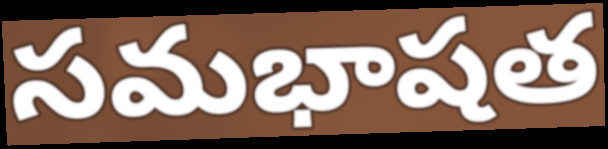
సమభాషత